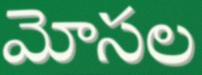
మోసల